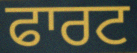
ਫਾਰਟ